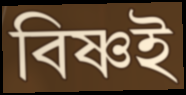
বিষ্ণই